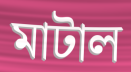
মাটাল